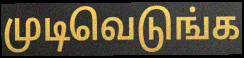
முடிவெடுங்க